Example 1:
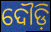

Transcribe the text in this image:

ଦୌଡ଼ି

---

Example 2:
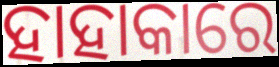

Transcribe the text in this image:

ହାହାକାରେ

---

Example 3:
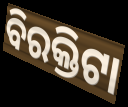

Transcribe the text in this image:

ବିରକ୍ତିଟା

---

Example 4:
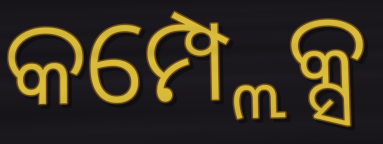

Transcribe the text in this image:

କମ୍ପ୍ଲେକ୍ସ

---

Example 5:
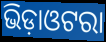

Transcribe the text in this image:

ଭିଡ଼ାଓଟରା